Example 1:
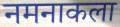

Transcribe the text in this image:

नमनाकला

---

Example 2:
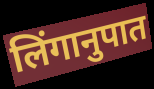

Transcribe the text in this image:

लिंगानुपात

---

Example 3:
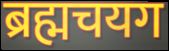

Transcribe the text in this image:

ब्रह्मचयग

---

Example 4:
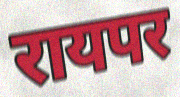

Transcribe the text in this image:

रायपर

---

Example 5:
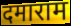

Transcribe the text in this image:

दमाराम